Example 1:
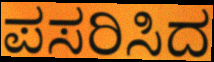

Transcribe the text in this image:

ಪಸರಿಸಿದ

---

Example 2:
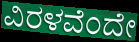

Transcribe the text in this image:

ವಿರಳವೆಂದೇ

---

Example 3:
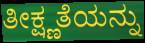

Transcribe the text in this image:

ತೀಕ್ಷ್ಣತೆಯನ್ನು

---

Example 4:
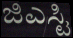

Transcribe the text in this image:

ಜಿಎಸ್ಟಿ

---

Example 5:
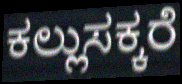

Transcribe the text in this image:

ಕಲ್ಲುಸಕ್ಕರೆ